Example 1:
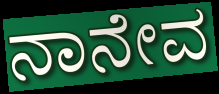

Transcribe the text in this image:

ನಾನೇವ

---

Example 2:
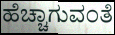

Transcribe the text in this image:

ಹೆಚ್ಚಾಗುವಂತೆ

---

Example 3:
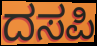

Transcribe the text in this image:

ದಸಪಿ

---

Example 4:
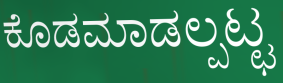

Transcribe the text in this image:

ಕೊಡಮಾಡಲ್ಪಟ್ಟ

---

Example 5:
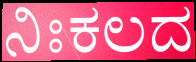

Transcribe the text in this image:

ನಿಃಕಲದ